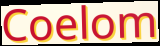
Coelom